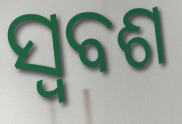
ସ୍ଵବଶ